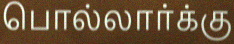
பொல்லார்க்கு